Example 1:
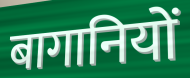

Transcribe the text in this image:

बागानियों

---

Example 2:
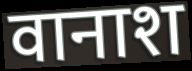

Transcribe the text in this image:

वानाश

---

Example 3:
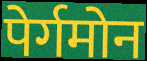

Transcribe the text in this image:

पेर्गमोन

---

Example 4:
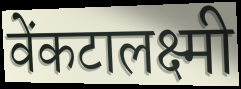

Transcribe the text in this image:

वेंकटालक्ष्मी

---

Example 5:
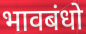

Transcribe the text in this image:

भावबंधो